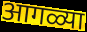
आगळ्या